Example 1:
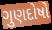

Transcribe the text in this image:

ગુણદોષો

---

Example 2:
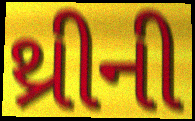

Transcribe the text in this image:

થ્રીની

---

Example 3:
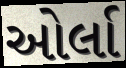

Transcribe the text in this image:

ઓર્લા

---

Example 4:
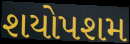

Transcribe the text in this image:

શયોપશમ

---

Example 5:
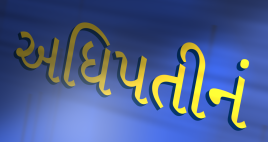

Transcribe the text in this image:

અધિપતીનં